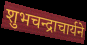
शुभचन्द्राचार्यने